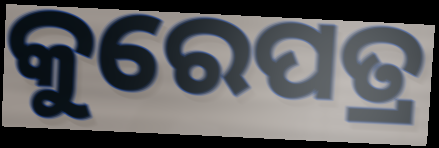
କୁରେପତ୍ର